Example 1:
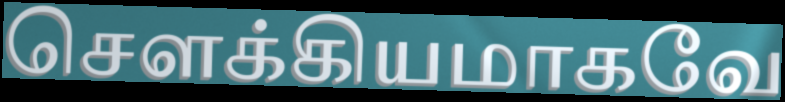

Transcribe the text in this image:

சௌக்கியமாகவே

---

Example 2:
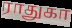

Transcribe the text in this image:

ராதுகா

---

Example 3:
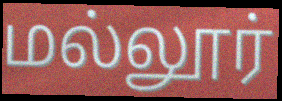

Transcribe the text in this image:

மல்லூர்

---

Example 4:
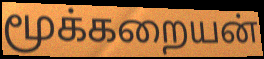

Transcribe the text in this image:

மூக்கறையன்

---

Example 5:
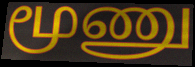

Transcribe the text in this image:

மூணு